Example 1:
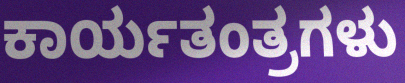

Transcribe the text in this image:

ಕಾರ್ಯತಂತ್ರಗಳು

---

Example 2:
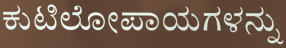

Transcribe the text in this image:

ಕುಟಿಲೋಪಾಯಗಳನ್ನು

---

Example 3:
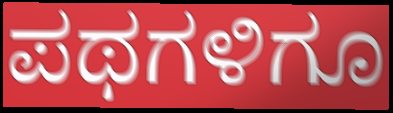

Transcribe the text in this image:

ಪಥಗಳಿಗೂ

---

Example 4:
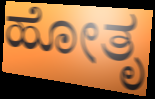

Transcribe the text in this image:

ಹೋತೃ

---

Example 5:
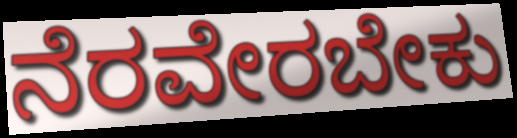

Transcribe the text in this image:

ನೆರವೇರಬೇಕು